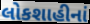
લોકશાહીનાં